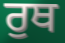
ਰੁਥ